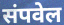
संपवेल